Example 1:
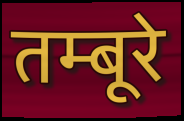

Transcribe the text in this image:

तम्बूरे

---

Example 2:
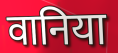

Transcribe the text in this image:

वानिया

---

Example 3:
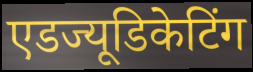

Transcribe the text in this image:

एडज्यूडिकेटिंग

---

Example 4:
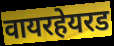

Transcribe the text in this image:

वायरहेयरड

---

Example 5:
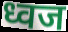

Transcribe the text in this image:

ध्वज